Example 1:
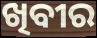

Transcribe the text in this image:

ଖିବୀର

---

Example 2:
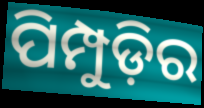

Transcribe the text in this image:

ପିମ୍ପୁଡ଼ିର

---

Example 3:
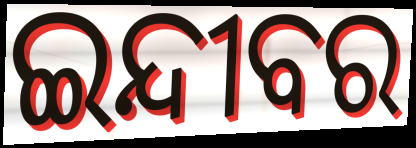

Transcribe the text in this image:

ଇନ୍ଦୀବର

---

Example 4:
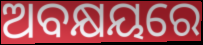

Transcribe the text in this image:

ଅବକ୍ଷୟରେ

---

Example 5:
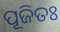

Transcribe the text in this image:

ପୂଜିତଃ